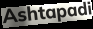
Ashtapadi